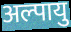
अल्पायु